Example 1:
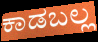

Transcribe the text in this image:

ಕಾಡಬಲ್ಲ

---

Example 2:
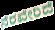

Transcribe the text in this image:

ನೆರವೇರಿದೆ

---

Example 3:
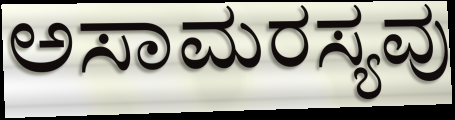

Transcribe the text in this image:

ಅಸಾಮರಸ್ಯವು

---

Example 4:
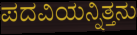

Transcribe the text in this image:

ಪದವಿಯನ್ನಿತ್ತನು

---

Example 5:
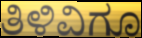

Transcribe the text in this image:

ತಿಳಿವಿಗೂ